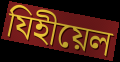
যিহীয়েল